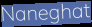
Naneghat